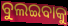
ବୁଲଇବାକୁ